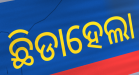
ଛିଡାହେଲା